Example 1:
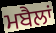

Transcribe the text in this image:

ਮਬੈਲਾਂ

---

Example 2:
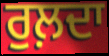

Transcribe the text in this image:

ਰੁਲ਼ਦਾ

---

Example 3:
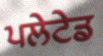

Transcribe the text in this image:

ਪਲੇਟੇਡ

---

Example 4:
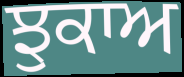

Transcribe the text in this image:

ਝੁਕਾਅ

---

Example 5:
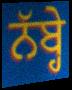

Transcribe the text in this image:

ਨੱਬ੍ਹੇ